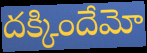
దక్కిందేమో